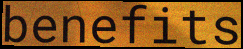
benefits